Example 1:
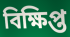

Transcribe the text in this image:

বিক্ষিপ্ত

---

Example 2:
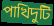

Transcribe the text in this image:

পাখিদুটি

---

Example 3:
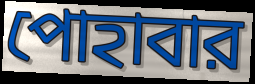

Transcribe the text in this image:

পোহাবার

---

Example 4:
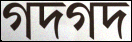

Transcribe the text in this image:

গদগদ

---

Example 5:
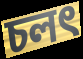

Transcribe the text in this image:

চলৎ